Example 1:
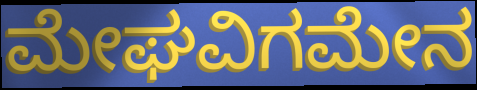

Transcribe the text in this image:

ಮೇಘವಿಗಮೇನ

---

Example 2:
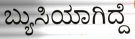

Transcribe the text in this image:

ಬ್ಯುಸಿಯಾಗಿದ್ದೆ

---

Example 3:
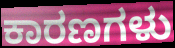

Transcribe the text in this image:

ಕಾರಣಗಳು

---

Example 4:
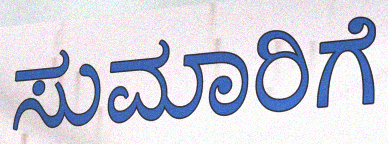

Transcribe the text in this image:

ಸುಮಾರಿಗೆ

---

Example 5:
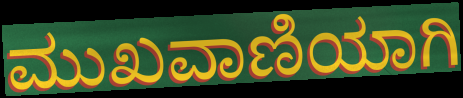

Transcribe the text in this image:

ಮುಖವಾಣಿಯಾಗಿ